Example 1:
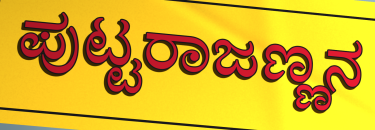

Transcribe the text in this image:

ಪುಟ್ಟರಾಜಣ್ಣನ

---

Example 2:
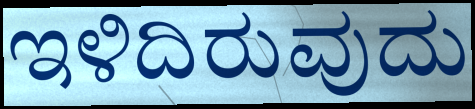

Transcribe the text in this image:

ಇಳಿದಿರುವುದು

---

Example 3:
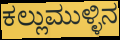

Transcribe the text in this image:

ಕಲ್ಲುಮುಳ್ಳಿನ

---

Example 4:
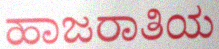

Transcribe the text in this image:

ಹಾಜರಾತಿಯ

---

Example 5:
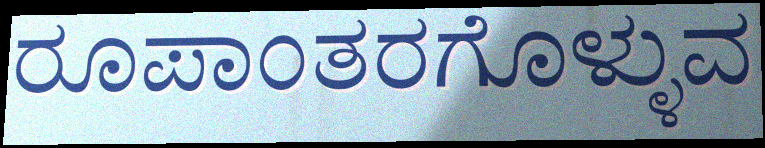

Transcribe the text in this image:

ರೂಪಾಂತರಗೊಳ್ಳುವ